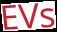
EVs